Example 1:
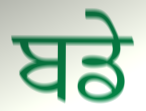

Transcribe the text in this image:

ਬਡੇ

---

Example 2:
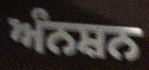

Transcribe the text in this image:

ਅੰਨਸ਼ਨ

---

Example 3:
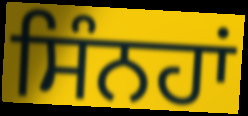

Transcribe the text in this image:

ਸਿੰਨਹਾਂ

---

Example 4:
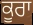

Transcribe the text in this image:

ਕੂਰਾ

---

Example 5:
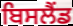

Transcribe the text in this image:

ਬਿਸਲੈਂਡ